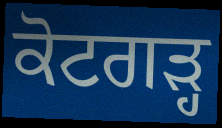
ਕੋਟਗੜ੍ਹ